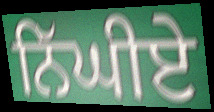
ਨਿੱਘੀਏ